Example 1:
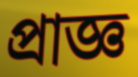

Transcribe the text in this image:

প্রাজ্ঞ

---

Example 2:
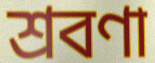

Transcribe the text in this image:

শ্রবণা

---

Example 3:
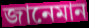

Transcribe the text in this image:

জানেমান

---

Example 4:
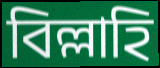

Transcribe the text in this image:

বিল্লাহি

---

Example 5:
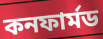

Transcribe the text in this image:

কনফার্মড